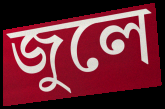
জুলে